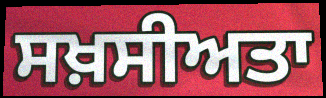
ਸਖ਼ਸੀਅਤਾ